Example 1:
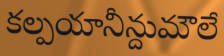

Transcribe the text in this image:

కల్పయానీన్దుమౌలే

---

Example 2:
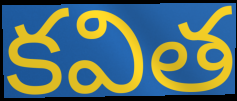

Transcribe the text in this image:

కవిత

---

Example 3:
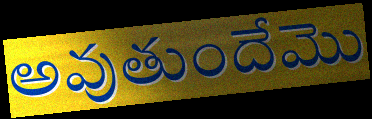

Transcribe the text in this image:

అవుతుందేమొ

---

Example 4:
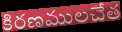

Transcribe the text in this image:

కిరణములచేత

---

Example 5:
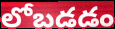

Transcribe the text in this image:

లోబడడం